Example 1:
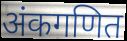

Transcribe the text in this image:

अंकगणित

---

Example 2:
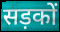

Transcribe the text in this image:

सड़कों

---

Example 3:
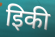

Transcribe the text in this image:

इिकी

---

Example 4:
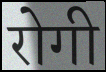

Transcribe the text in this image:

रोगी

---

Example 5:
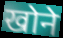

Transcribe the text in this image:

खोने